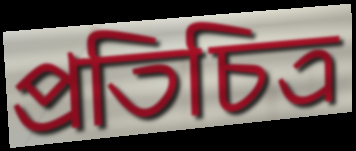
প্রতিচিত্র